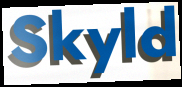
Skyld